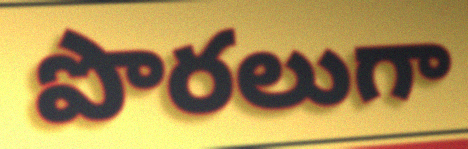
పొరలుగా